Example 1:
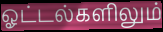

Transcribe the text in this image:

ஓட்டல்களிலும்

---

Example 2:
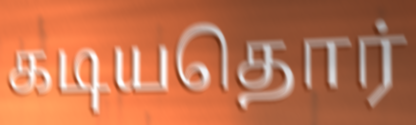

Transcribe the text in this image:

கடியதொர்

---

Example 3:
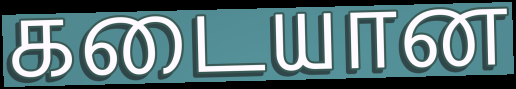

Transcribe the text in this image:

கடையான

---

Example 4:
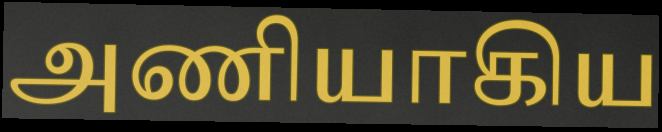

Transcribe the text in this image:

அணியாகிய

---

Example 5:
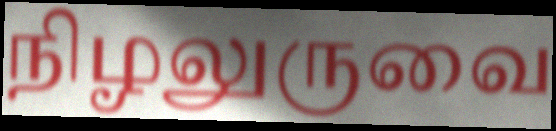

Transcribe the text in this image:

நிழலுருவை